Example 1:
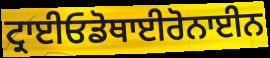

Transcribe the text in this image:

ਟ੍ਰਾਈਓਡੋਥਾਈਰੋਨਾਈਨ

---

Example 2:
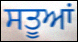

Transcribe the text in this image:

ਸਤੂਆਂ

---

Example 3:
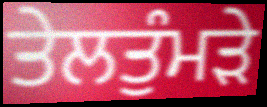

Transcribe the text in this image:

ਤੇਲਤੁੰਮੜੇ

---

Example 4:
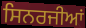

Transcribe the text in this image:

ਸਿਨਰਜੀਆਂ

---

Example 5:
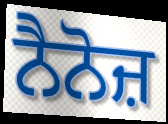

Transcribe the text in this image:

ਨੈਨੋਜ਼